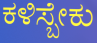
ಕಳಿಸ್ಬೇಕು